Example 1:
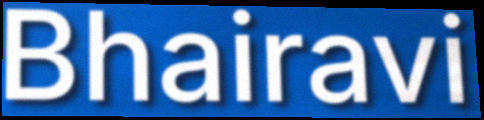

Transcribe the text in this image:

Bhairavi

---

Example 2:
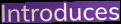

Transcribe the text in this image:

Introduces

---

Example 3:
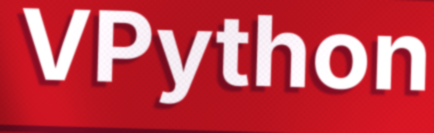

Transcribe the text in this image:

VPython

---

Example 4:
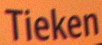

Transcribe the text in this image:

Tieken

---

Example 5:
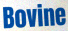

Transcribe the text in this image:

Bovine